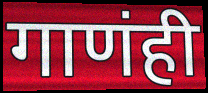
गाणंही